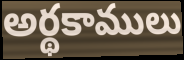
అర్థకాములు